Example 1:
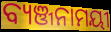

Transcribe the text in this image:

ବ୍ୟଞ୍ଜନାମୟୀ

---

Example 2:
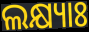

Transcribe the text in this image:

ଲକ୍ଷ୍ୟାଃ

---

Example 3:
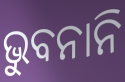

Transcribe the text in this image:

ଭୁବନାନି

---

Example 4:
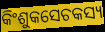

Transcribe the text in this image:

କିଂଶୁକସେଚକସ୍ୟ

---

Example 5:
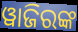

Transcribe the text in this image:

ୱାଜିରଙ୍କ